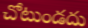
చోటుండదు